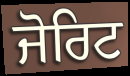
ਜੋਰਿਟ